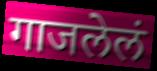
गाजलेलं